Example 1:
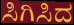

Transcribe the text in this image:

ಸಿಗಿಸಿದ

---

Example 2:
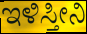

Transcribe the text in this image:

ಇಳಿಸ್ತೀನಿ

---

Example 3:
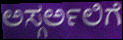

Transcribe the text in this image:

ಅಸ್ಗರ್ಅಲಿಗೆ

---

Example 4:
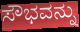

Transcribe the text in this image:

ಸೌಭವನ್ನು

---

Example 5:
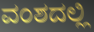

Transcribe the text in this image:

ವಂಶದಲ್ಲಿ